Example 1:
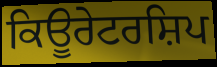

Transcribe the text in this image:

ਕਿਊਰੇਟਰਸ਼ਿਪ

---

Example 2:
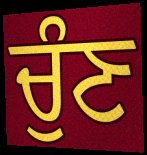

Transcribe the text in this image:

ਚੁੰਣ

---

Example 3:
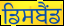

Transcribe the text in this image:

ਡਿਸਬੈਂਡ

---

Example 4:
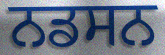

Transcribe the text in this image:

ਨਡਸਨ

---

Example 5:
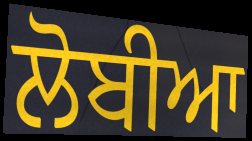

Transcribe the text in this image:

ਲੋਬੀਆ